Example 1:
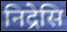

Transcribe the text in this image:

निद्रेसि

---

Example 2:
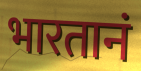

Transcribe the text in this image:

भारतानं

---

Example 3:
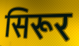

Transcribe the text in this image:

सिरूर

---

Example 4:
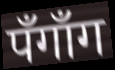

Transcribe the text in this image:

पँगाँग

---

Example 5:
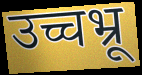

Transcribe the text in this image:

उच्चभ्रू